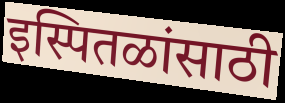
इस्पितळांसाठी